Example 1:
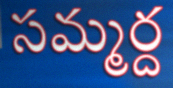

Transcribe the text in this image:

సమ్మర్ద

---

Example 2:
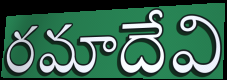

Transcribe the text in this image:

రమాదేవి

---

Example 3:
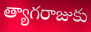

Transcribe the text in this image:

త్యాగరాజుకు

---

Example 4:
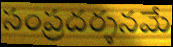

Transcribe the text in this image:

సంప్రదర్శనమే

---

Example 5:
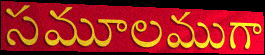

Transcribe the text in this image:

సమూలముగా